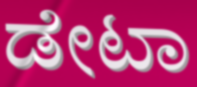
ಡೇಟಾ